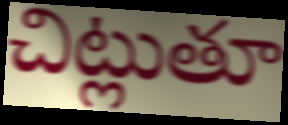
చిట్లుతూ